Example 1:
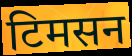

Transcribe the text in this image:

टिमसन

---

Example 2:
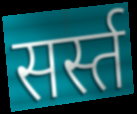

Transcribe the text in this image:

सर्स्त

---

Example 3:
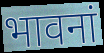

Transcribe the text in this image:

भावनां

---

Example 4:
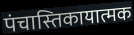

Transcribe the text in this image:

पंचास्तिकायात्मक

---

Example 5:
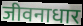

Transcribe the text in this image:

जीवनाधार